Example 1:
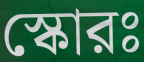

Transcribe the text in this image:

স্কোরঃ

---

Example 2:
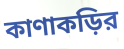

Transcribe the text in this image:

কাণাকড়ির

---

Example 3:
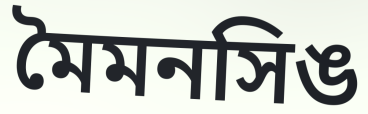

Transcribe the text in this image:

মৈমনসিঙ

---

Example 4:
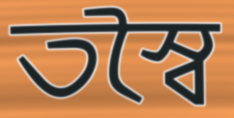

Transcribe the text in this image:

তস্বৈ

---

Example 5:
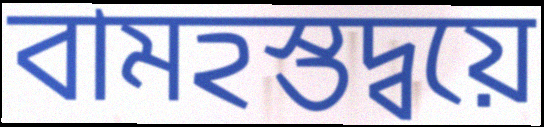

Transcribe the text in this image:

বামহস্তদ্বয়ে